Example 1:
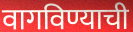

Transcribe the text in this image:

वागविण्याची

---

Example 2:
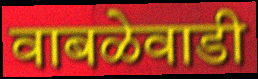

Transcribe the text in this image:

वाबळेवाडी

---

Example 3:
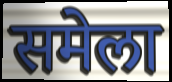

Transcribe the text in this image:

समेला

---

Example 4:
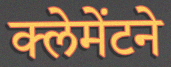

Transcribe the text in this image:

क्लेमेंटने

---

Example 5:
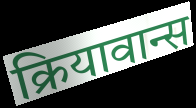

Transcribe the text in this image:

क्रियावान्स